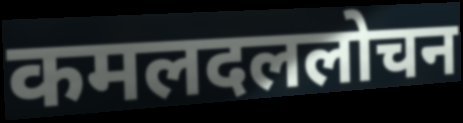
कमलदललोचन